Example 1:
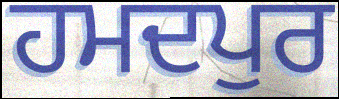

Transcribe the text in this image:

ਹਮਦਪੁਰ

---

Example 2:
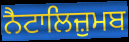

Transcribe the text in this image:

ਨੈਟਾਲਿਜ਼ੁਮਬ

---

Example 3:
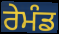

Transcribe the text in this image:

ਰੇਮੰਡ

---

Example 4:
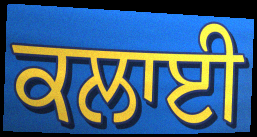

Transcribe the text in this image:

ਕਲਾਈ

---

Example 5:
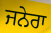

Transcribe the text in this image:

ਜਨੇਰਾ